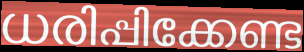
ധരിപ്പിക്കേണ്ട